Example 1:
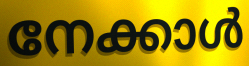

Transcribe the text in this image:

നേക്കാൾ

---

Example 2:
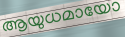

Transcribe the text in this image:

ആയുധമായോ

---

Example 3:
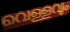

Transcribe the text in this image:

വെള്ളവും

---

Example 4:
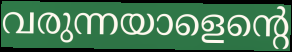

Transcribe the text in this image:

വരുന്നയാളെന്റെ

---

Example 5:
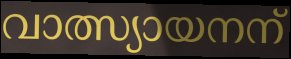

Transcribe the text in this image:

വാത്സ്യായനന്